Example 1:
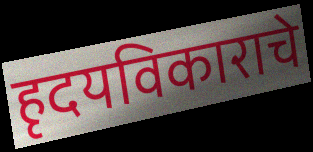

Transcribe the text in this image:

हृदयविकाराचे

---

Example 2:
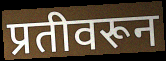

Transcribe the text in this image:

प्रतीवरून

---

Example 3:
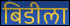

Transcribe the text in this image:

बिडीला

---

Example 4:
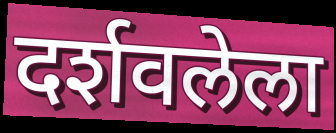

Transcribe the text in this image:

दर्शवलेला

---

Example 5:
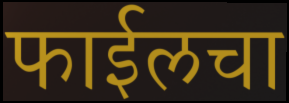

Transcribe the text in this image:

फाईलचा